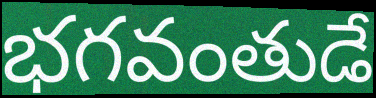
భగవంతుడే